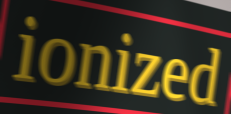
ionized